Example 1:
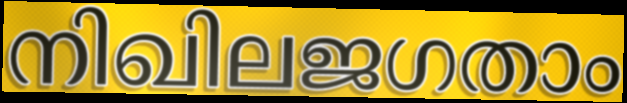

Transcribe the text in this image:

നിഖിലജഗതാം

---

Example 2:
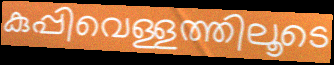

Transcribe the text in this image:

കുപ്പിവെള്ളത്തിലൂടെ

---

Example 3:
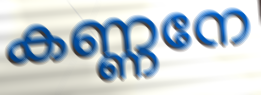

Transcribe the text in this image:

കണ്ണനേ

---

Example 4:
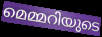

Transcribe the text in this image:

മെമ്മറിയുടെ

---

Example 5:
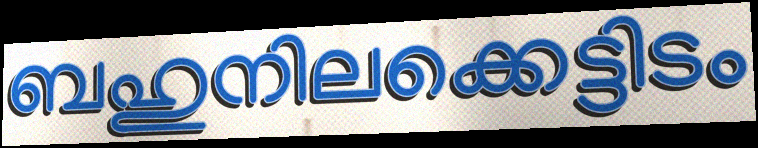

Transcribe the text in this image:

ബഹുനിലക്കെട്ടിടം